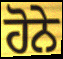
ਹੋਨੇ